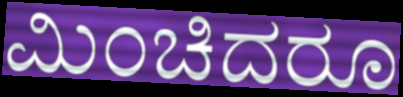
ಮಿಂಚಿದರೂ